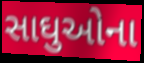
સાઘુઓના